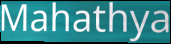
Mahathya